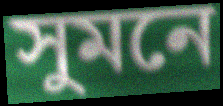
সুমনে